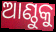
ଆଣ୍ଠୁକୁ